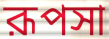
রূপসা